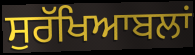
ਸੁਰੱਖਿਆਬਲਾਂ